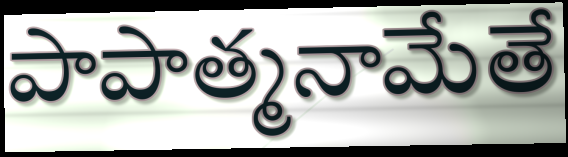
పాపాత్మనామేతే